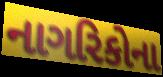
નાગરિકોના